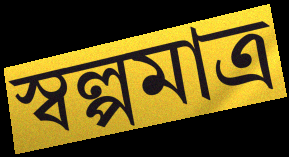
স্বল্পমাত্র